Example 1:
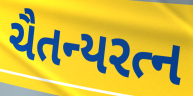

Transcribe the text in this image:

ચૈતન્યરત્ન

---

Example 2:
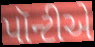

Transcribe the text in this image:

પૉન્ટીએ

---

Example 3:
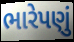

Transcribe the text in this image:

ભારેપણું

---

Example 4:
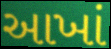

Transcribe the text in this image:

આખાં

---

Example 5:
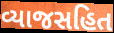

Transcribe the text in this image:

વ્યાજસહિત